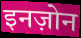
इनज़ोन